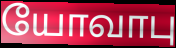
யோவாபு